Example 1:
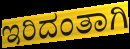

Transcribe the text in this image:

ಇರಿದಂತಾಗಿ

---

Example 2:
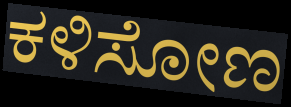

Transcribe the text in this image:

ಕಳಿಸೋಣ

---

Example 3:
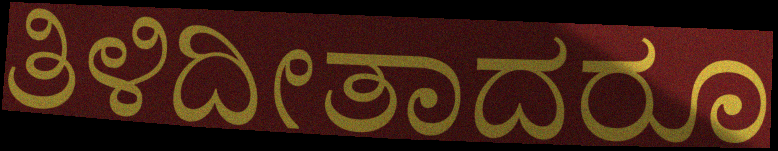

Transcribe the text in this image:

ತಿಳಿದೀತಾದರೂ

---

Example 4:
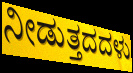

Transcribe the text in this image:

ನೀಡುತ್ತದದಳು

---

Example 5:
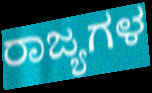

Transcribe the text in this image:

ರಾಜ್ಯಗಳ